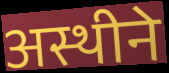
अस्थीने